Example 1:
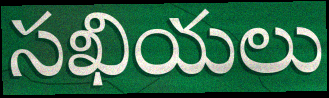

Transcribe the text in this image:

సఖియలు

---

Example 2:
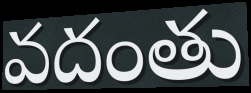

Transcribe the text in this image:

వదంతు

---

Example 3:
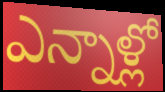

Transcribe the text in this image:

ఎన్నాళ్లో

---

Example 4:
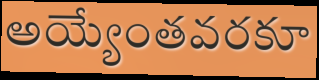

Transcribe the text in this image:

అయ్యేంతవరకూ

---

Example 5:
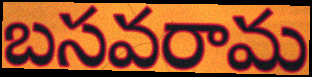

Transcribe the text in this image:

బసవరామ